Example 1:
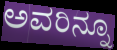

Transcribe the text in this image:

ಅವರಿನ್ನೂ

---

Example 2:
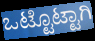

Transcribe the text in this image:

ಒಟ್ಟೊಟ್ಟಾಗಿ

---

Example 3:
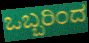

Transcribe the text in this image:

ಒಬ್ಬರಿಂದ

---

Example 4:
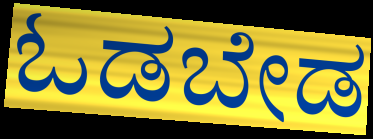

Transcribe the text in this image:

ಓಡಬೇಡ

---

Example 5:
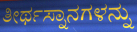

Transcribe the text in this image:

ತೀರ್ಥಸ್ನಾನಗಳನ್ನು